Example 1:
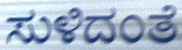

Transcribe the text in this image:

ಸುಳಿದಂತೆ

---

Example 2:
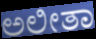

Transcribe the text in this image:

ಅಲೀತಾ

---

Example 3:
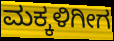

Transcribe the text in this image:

ಮಕ್ಕಳಿಗೀಗ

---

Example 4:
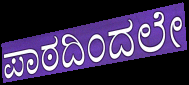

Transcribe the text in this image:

ಪಾಠದಿಂದಲೇ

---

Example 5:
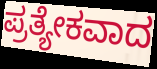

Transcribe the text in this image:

ಪ್ರತ್ಯೇಕವಾದ